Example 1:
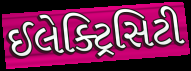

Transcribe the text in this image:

ઈલેક્ટ્રિસિટી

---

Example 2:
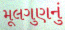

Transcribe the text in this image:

મૂલગુણનું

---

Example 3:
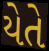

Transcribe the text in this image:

યેતે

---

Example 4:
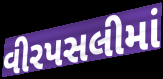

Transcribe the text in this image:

વીરપસલીમાં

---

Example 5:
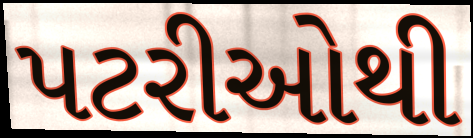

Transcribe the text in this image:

પટરીઓથી